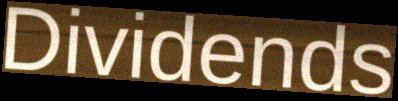
Dividends